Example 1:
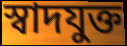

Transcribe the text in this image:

স্বাদযুক্ত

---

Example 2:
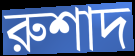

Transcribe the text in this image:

রুশাদ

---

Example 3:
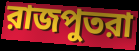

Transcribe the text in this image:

রাজপুতরা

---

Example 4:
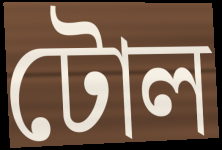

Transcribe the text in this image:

টোল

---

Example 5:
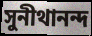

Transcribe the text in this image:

সুনীথানন্দ